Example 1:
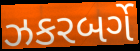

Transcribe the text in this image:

ઝકરબર્ગે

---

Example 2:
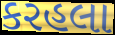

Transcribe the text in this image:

કરહલા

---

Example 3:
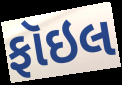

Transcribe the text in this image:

ફૉઇલ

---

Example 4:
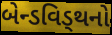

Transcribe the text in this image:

બેન્ડવિડ્થનો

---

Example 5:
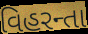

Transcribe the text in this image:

વિહરન્તા